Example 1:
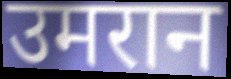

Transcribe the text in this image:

उमरान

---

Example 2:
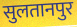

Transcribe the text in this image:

सुलतानपुर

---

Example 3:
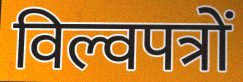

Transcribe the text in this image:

विल्वपत्रों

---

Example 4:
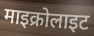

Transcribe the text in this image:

माइक्रोलाइट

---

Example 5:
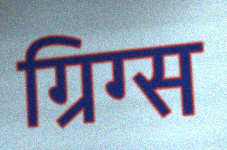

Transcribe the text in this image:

ग्रिग्स